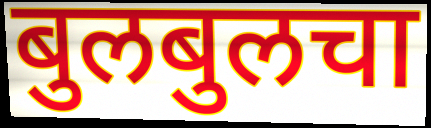
बुलबुलचा